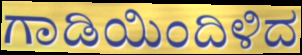
ಗಾಡಿಯಿಂದಿಳಿದ